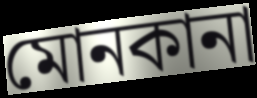
মোনকানা